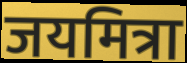
जयमित्रा